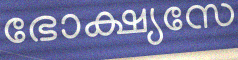
ഭോക്ഷ്യസേ